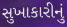
સુખાકારીનું